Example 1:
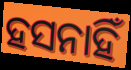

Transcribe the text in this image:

ହସନାହିଁ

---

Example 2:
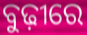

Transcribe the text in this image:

ବୁଢ଼ୀରେ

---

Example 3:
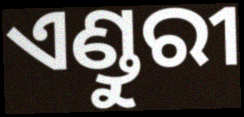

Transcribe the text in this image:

ଏଣ୍ଡୁରୀ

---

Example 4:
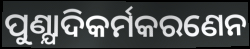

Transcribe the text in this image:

ପୁଣ୍ଯାଦିକର୍ମକରଣେନ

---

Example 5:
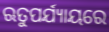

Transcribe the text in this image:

ଋତୁପର୍ଯ୍ୟାୟରେ